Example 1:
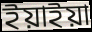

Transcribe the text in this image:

ইয়াইয়া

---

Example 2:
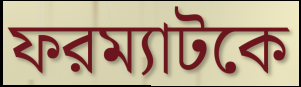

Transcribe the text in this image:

ফরম্যাটকে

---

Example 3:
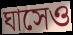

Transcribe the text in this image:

ঘাসেও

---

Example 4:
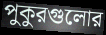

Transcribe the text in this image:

পুকুরগুলোর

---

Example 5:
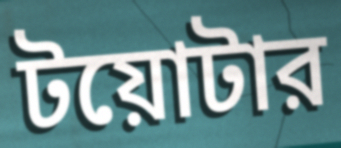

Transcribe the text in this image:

টয়োটার